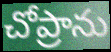
చోప్రాను